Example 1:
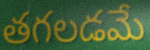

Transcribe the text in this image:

తగలడమే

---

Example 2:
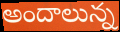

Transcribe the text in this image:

అందాలున్న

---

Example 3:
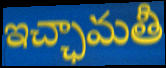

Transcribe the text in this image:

ఇచ్ఛామతీ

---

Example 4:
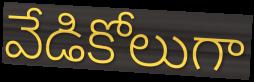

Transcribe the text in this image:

వేడికోలుగా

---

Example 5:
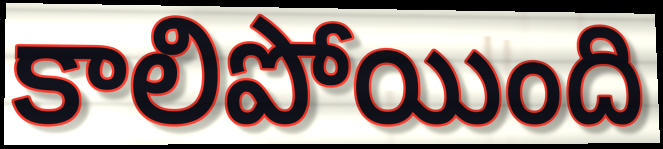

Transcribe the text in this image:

కాలిపోయింది